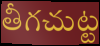
తీగచుట్ట